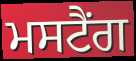
ਮਸਟੈਂਗ